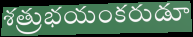
శత్రుభయంకరుడూ